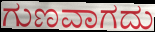
ಗುಣವಾಗದು